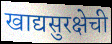
खाद्यसुरक्षेची